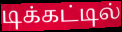
டிக்கட்டில்